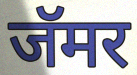
जॅमर